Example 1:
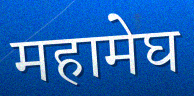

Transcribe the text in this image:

महामेघ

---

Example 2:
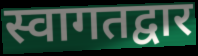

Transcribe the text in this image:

स्वागतद्वार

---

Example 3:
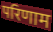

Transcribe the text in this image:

परिणाम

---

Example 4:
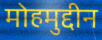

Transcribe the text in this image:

मोहमुद्दीन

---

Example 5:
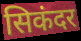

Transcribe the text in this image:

सिकंदर